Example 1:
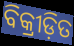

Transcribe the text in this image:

ବିକ୍ରୀଡ଼ିତ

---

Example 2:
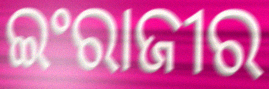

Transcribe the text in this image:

ଇଂରାଜୀର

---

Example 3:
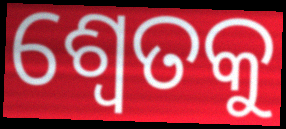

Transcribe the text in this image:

ଶ୍ଵେତକୁ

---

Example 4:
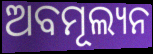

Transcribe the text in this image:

ଅବମୂଲ୍ୟନ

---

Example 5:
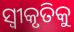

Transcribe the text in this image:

ସ୍ୱୀକୃତିକୁ